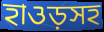
হাওড়সহ